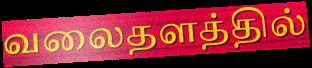
வலைதளத்தில்